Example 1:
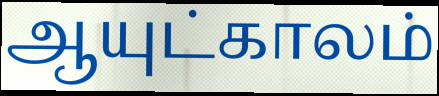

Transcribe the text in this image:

ஆயுட்காலம்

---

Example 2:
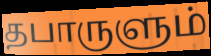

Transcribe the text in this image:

தபாருளும்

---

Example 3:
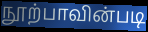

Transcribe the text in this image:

நூற்பாவின்படி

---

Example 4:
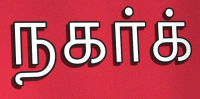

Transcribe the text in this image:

நகர்க்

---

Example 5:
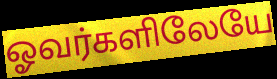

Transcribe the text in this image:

ஓவர்களிலேயே